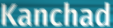
Kanchad